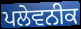
ਪਲੇਵਨੀਕ